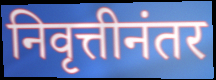
निवृत्तीनंतर